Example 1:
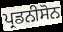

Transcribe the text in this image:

ਪ੍ਰਡਨੀਸੋਨ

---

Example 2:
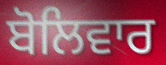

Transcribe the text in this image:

ਬੋਲਿਵਾਰ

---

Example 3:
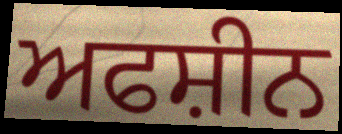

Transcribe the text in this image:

ਅਫਸ਼ੀਨ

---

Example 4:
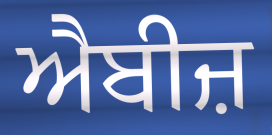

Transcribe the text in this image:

ਐਬੀਜ਼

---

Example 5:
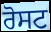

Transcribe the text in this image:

ਰੋਸਟ